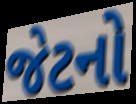
જેટનો